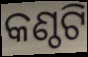
କଣ୍ଠଟି